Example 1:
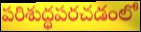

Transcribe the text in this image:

పరిశుద్ధపరచడంలో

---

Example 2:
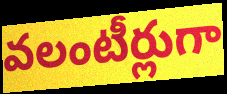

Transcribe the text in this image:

వలంటీర్లుగా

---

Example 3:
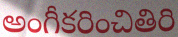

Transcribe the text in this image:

అంగీకరించితిరి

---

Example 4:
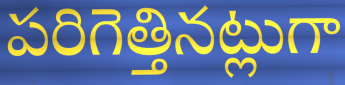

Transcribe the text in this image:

పరిగెత్తినట్లుగా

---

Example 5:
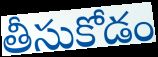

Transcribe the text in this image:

తీసుకోడం